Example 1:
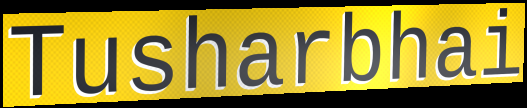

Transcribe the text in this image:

Tusharbhai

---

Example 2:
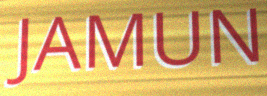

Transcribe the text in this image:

JAMUN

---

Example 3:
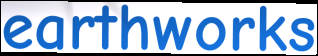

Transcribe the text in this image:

earthworks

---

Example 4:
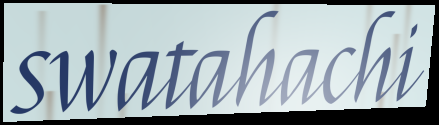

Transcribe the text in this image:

swatahachi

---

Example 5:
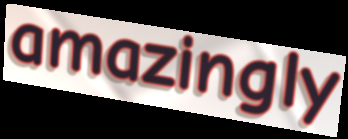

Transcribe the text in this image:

amazingly